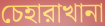
চেহারাখানা